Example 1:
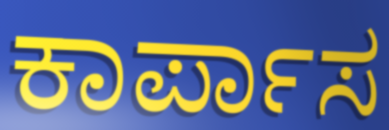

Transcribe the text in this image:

ಕಾರ್ಪಾಸ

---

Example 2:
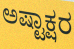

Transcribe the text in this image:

ಅಷ್ಟಾಕ್ಷರ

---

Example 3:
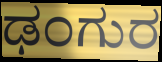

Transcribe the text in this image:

ಢಂಗುರ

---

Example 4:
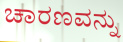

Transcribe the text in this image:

ಚಾರಣವನ್ನು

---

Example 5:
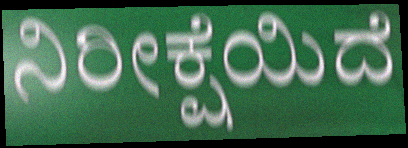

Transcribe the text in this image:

ನಿರೀಕ್ಷೆಯಿದೆ